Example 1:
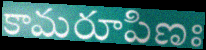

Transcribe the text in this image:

కామరూపిణః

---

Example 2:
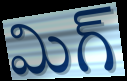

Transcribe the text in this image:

మిగ్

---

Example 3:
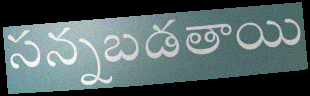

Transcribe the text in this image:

సన్నబడతాయి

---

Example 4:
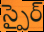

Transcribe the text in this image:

స్పైర్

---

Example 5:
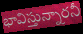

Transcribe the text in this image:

భావిస్తున్నారనీ